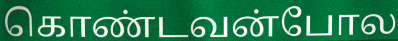
கொண்டவன்போல